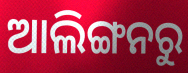
ଆଲିଙ୍ଗନରୁ